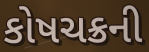
કોષચક્રની